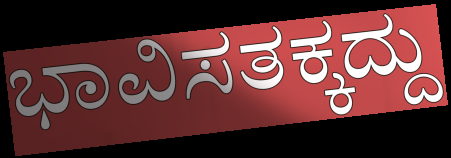
ಭಾವಿಸತಕ್ಕದ್ದು